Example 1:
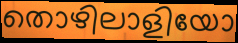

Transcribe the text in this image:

തൊഴിലാളിയോ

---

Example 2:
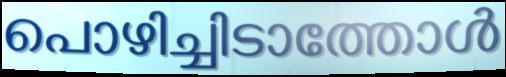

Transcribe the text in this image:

പൊഴിച്ചിടാത്തോൾ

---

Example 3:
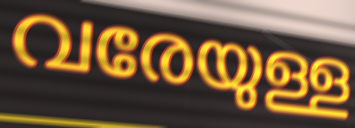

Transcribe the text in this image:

വരേയുള്ള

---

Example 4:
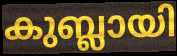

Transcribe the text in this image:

കുബ്ലായി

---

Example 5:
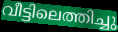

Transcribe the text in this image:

വീട്ടിലെത്തിച്ചു